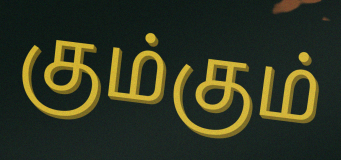
கும்கும்